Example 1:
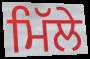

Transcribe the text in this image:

ਮਿੱਲੇ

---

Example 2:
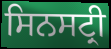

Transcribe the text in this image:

ਸਿਨਸਟ੍ਰੀ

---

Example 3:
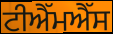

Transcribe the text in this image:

ਟੀਐੱਮਐੱਸ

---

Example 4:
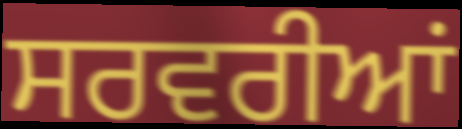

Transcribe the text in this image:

ਸਰਵਰੀਆਂ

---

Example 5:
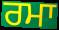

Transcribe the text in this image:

ਰਮਾ